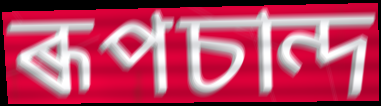
ৰূপচান্দ